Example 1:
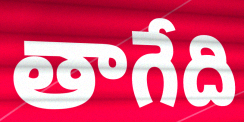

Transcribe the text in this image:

తాగేది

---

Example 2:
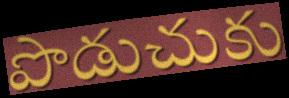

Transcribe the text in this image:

పొడుచుకు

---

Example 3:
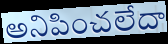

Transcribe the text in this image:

అనిపించలేదా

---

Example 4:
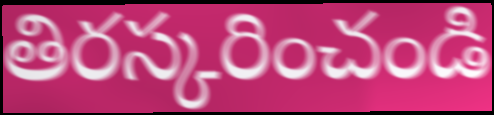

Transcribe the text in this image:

తిరస్కరించండి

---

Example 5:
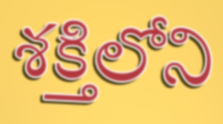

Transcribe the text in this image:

శక్తిలోని